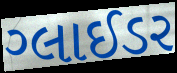
ગ્લાઈડર